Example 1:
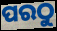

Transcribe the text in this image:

ପରଠୁ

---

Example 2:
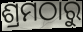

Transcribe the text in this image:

ଶ୍ରମଠାରୁ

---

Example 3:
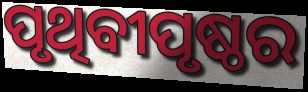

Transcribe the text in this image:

ପୃଥିବୀପୃଷ୍ଠର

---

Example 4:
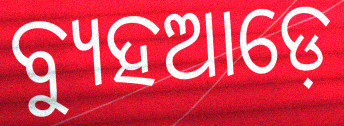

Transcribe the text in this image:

ବ୍ୟୁହଆଡ଼େ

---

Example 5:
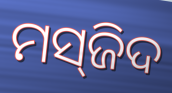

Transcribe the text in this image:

ମସ୍‌ଜିଦ